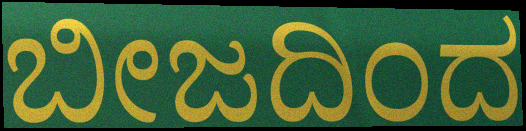
ಬೀಜದಿಂದ